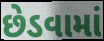
છેડવામાં